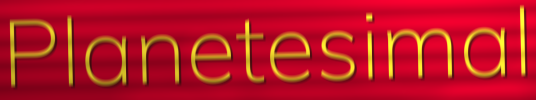
Planetesimal